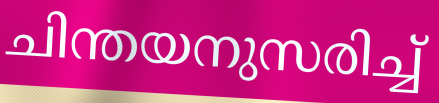
ചിന്തയനുസരിച്ച്